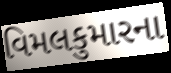
વિમલકુમારના